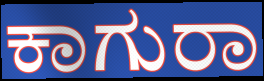
ಕಾಗುರಾ